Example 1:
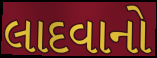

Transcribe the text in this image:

લાદવાનો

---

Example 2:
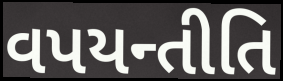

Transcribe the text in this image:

વપયન્તીતિ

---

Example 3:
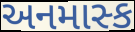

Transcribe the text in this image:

અનમાસ્ક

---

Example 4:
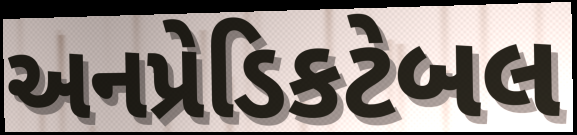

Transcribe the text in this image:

અનપ્રેડિકટેબલ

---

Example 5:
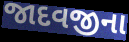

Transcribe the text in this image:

જાદવજીના